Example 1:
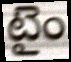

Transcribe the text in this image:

టైం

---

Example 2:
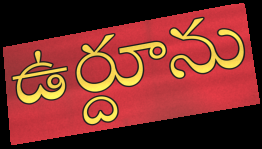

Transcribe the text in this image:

ఉర్దూను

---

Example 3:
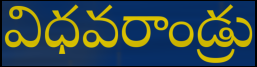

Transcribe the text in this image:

విధవరాండ్రు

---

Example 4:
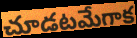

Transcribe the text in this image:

చూడటమేగాక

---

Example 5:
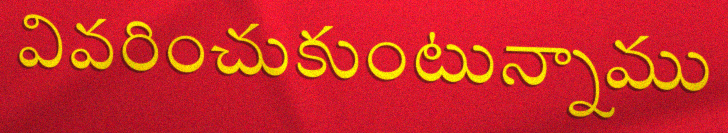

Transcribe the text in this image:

వివరించుకుంటున్నాము